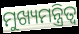
ମୁଖ୍ୟମନ୍ତ୍ରିତ୍ବ